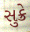
સુક્રે